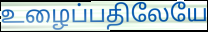
உழைப்பதிலேயே